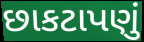
છાકટાપણું